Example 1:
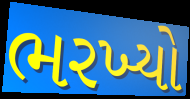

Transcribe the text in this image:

ભરખ્યો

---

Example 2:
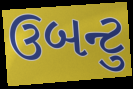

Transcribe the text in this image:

ઉબન્ટુ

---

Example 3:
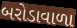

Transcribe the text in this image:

બરોડાવાળા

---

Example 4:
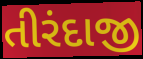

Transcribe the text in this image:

તીરંદાજી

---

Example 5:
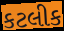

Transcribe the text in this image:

કટલીક